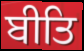
ਬੀਤਿ